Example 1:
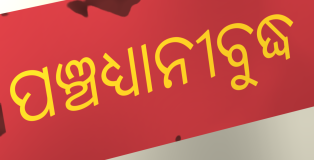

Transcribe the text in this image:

ପଞ୍ଚଧ୍ୟାନୀବୁଦ୍ଧ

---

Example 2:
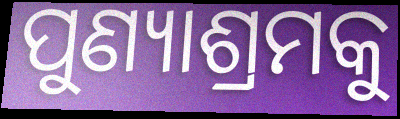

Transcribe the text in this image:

ପୁଣ୍ୟାଶ୍ରମକୁ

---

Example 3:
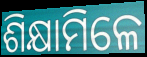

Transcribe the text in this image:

ଶିକ୍ଷାମିଳେ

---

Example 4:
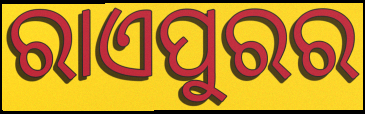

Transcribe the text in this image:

ରାଏପୁରର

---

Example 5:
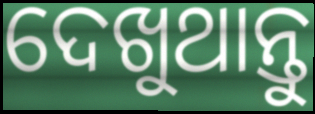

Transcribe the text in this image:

ଦେଖୁଥାନ୍ତୁ